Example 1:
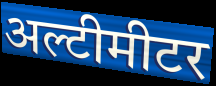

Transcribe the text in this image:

अल्टीमीटर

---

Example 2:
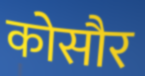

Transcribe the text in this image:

कोसौर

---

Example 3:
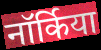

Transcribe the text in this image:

नॉर्किया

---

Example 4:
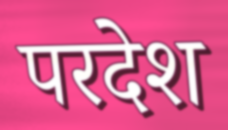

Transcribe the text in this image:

परदेश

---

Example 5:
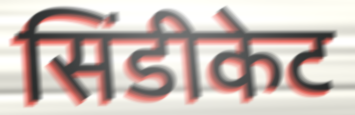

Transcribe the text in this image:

सिंडीकेट